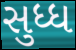
સુધ્ધ